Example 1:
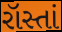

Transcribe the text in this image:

રૉસ્તાં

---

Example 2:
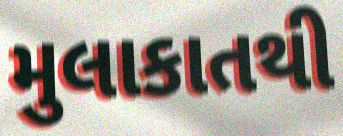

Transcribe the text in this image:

મુલાકાતથી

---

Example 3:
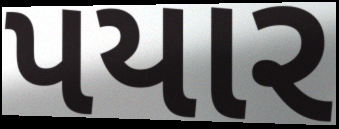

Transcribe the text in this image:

પયાર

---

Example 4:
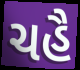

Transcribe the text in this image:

ચહૈ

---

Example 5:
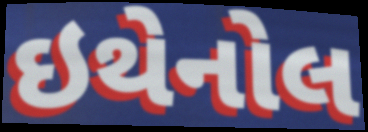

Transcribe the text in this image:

ઇથેનોલ